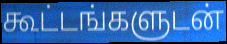
கூட்டங்களுடன்